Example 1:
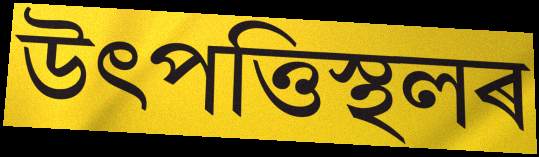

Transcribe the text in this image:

উৎপত্তিস্থলৰ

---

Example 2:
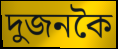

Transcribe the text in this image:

দুজনকৈ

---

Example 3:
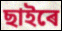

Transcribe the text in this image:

ছাইৰে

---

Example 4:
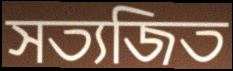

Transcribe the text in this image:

সত্যজিত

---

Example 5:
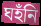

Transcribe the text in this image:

ঘহঁনি